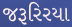
જરૂરિરયા